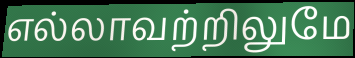
எல்லாவற்றிலுமே